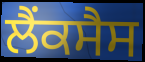
ਲੈਂਕਸੈਸ